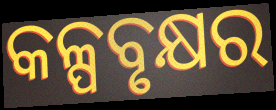
କଳ୍ପବୃକ୍ଷର